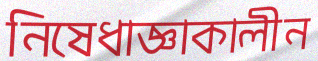
নিষেধাজ্ঞাকালীন